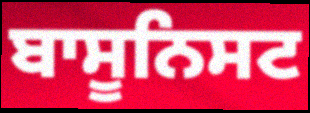
ਬਾਸੂਨਿਸਟ